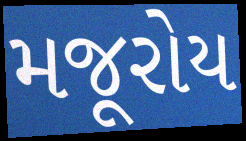
મજૂરોય